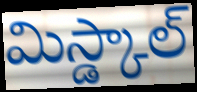
మిస్డ్కాల్